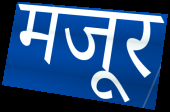
मजूर